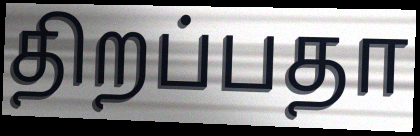
திறப்பதா